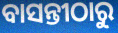
ବାସନ୍ତୀଠାରୁ